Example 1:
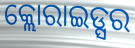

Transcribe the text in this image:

କ୍ଲୋରାଇଡ୍ସର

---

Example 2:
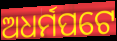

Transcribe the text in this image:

ଅଧର୍ମପଟେ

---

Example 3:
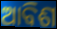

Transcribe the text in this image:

ଆବିଶ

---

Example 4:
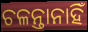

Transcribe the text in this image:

ଚଳନ୍ତାନାହିଁ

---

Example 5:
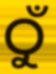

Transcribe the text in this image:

ଠୁଁ